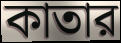
কাতার